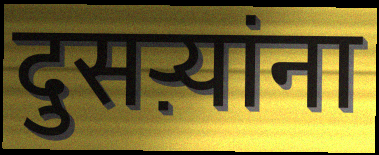
दुसऱ्‍यांना